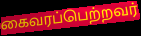
கைவரப்பெற்றவர்